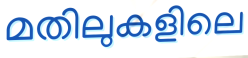
മതിലുകളിലെ